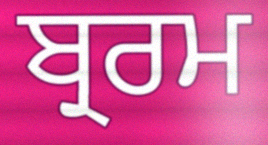
ਬ੍ਰਰਮ